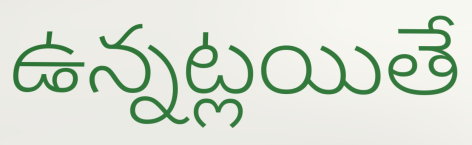
ఉన్నట్లయితే